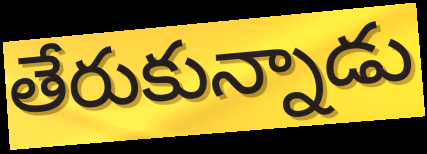
తేరుకున్నాడు